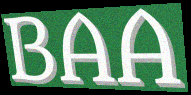
BAA